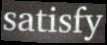
satisfy